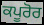
ਕਪੂਰੋਰ